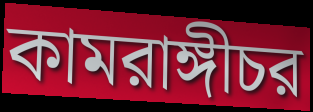
কামরাঙ্গীচর